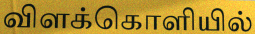
விளக்கொளியில்